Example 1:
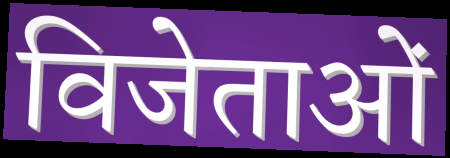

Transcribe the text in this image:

विजेताओं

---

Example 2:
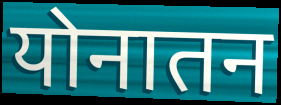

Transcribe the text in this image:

योनातन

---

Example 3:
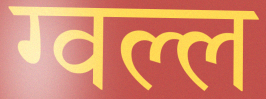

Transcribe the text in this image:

ग्वल्ल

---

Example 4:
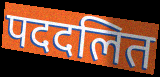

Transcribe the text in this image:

पददलित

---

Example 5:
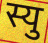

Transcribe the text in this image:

स्यु